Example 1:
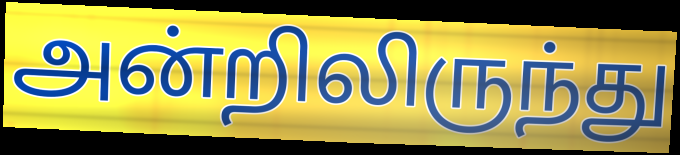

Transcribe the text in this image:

அன்றிலிருந்து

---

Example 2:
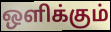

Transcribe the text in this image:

ஒளிக்கும்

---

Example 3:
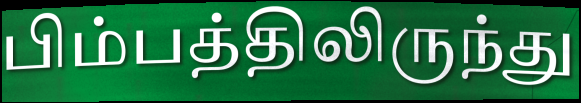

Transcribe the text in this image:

பிம்பத்திலிருந்து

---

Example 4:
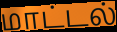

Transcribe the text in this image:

மாட்டல்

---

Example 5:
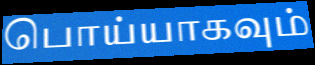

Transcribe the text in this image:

பொய்யாகவும்